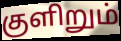
குளிறும்